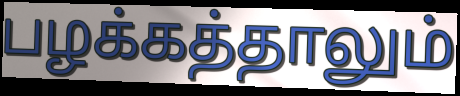
பழக்கத்தாலும்